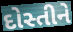
દોસ્તીને